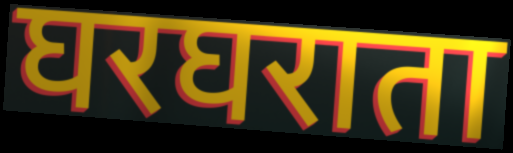
घरघराता